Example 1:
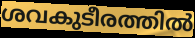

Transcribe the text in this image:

ശവകുടീരത്തിൽ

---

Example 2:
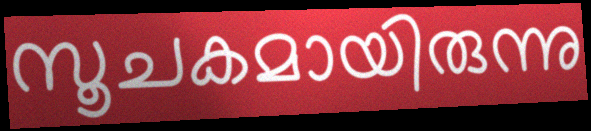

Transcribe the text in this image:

സൂചകമായിരുന്നു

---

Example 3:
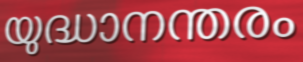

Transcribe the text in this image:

യുദ്ധാനന്തരം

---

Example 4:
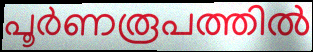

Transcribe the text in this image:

പൂർണരൂപത്തിൽ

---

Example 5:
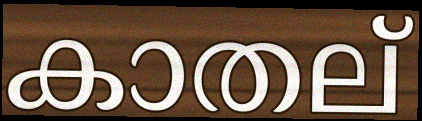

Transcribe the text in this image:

കാതല്